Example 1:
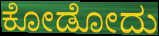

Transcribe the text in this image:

ಕೋಡೋದು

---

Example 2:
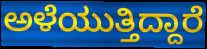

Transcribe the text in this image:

ಅಳೆಯುತ್ತಿದ್ದಾರೆ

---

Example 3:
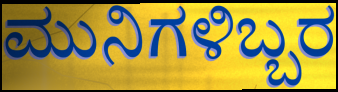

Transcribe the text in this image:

ಮುನಿಗಳಿಬ್ಬರ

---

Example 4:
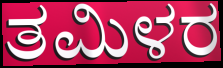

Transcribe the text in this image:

ತಮಿಳರ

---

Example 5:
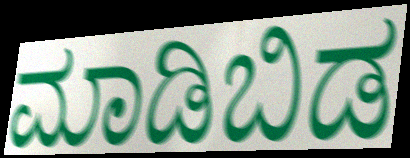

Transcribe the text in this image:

ಮಾಡಿಬಿಡ